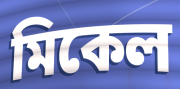
মিকেল